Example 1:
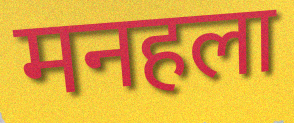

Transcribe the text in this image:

मनहला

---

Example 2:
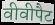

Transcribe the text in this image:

वीवीपैट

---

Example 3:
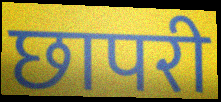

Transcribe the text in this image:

छापरी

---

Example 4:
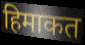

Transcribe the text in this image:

हिमाकत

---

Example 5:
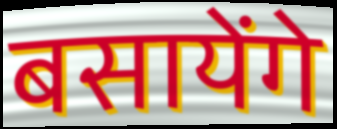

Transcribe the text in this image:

बसायेंगे